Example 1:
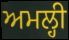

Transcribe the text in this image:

ਅਮਲ੍ਹੀ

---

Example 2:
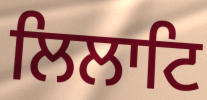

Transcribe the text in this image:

ਲਿਲਾਟਿ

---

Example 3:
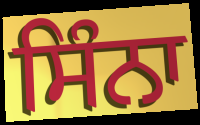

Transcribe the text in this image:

ਸਿੰਨਾ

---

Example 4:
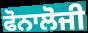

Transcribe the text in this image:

ਫੋਨਾਲੋਜੀ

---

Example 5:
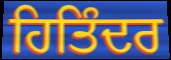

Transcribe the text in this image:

ਹਿਤਿੰਦਰ